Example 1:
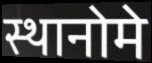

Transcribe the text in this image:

स्थानोमे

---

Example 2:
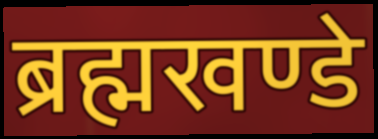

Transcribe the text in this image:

ब्रह्मखण्डे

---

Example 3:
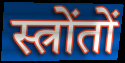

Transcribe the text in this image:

स्त्रोंतों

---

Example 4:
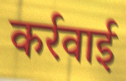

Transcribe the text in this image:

कर्रवाई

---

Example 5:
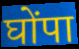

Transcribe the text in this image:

घोंपा